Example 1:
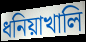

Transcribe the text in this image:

ধনিয়াখালি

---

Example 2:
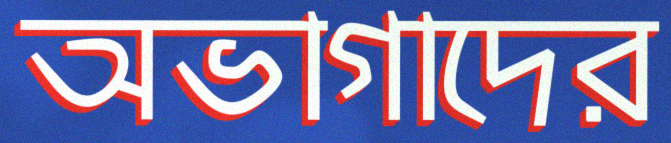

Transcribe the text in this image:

অভাগাদের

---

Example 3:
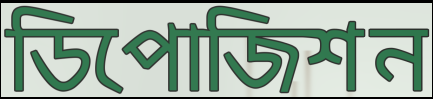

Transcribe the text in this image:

ডিপোজিশন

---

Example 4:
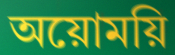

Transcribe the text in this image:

অয়োময়ি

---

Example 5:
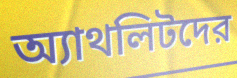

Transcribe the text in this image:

অ্যাথলিটদের